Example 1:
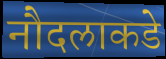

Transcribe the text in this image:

नौदलाकडे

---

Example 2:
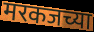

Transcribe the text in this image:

मरकजच्या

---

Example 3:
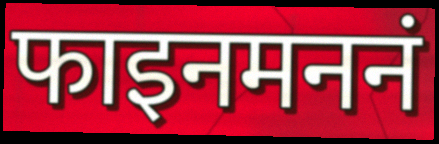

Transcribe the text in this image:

फाइनमननं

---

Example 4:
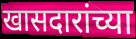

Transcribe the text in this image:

खासदारांच्या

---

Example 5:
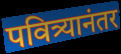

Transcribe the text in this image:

पवित्र्यानंतर